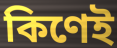
কিণেই